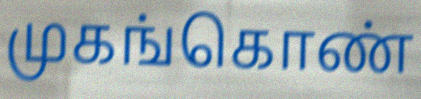
முகங்கொண்